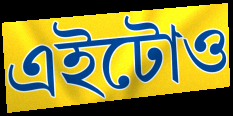
এইটোও